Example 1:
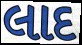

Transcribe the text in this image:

લાદ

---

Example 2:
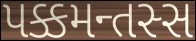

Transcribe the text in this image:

પક્કમન્તસ્સ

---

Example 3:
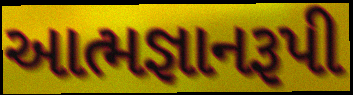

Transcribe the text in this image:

આત્મજ્ઞાનરૂપી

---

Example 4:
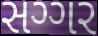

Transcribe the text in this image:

સગ્ગર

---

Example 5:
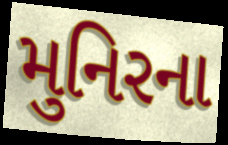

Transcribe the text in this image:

મુનિરના